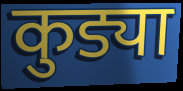
कुड्या